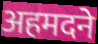
अहमदने